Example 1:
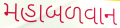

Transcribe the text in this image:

મહાબળવાન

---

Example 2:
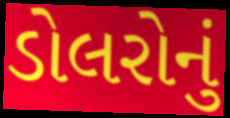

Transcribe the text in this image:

ડોલરોનું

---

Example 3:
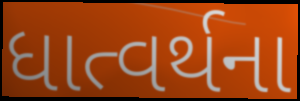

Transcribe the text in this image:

ધાત્વર્થના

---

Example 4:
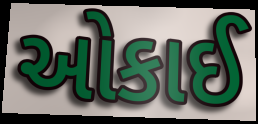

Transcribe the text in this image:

ઓકાઈ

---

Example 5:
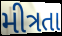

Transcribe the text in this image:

મીત્રતા